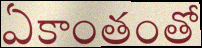
ఏకాంతంతో